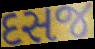
દસજ